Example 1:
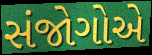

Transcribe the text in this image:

સંજોગોએ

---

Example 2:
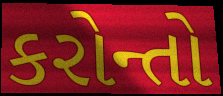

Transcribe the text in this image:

કરોન્તો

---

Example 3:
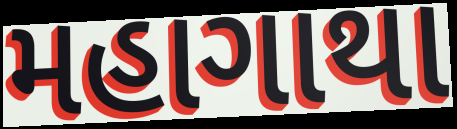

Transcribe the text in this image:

મહાગાથા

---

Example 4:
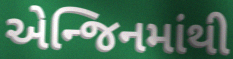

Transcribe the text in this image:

એન્જિનમાંથી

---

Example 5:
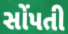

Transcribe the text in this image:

સોંપતી